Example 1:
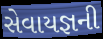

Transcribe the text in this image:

સેવાયજ્ઞની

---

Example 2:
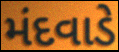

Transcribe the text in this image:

મંદવાડે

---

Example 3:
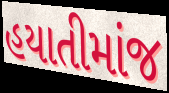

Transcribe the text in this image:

હયાતીમાંજ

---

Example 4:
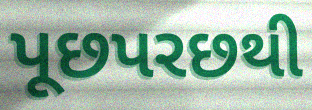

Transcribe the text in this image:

પૂછપરછથી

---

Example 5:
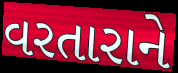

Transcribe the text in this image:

વરતારાને